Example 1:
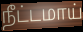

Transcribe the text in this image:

நீட்டமாய்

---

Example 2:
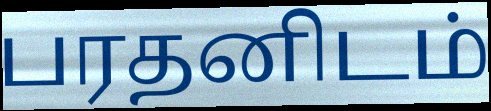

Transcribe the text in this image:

பரதனிடம்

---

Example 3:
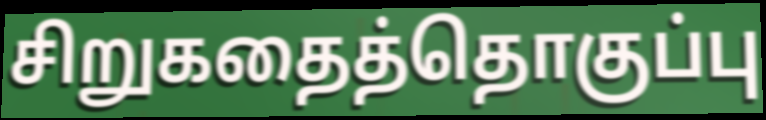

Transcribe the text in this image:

சிறுகதைத்தொகுப்பு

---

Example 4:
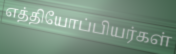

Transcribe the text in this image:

எத்தியோப்பியர்கள்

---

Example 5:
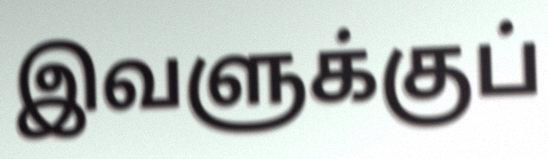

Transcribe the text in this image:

இவளுக்குப்